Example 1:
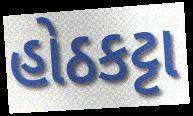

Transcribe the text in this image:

હોઠકટ્ટા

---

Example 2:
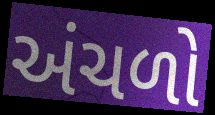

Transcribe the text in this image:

અંચળો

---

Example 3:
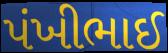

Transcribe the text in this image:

પંખીભાઈ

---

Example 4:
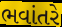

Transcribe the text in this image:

ભવાંતરે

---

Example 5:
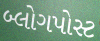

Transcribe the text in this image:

બ્લોગપોસ્ટ